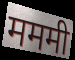
मममी